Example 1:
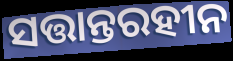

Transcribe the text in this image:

ସତ୍ତାନ୍ତରହୀନ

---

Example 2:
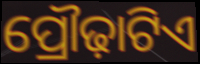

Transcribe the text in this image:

ପ୍ରୌଢ଼ାଟିଏ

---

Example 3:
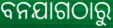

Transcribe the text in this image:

ବନଯାଗଠାରୁ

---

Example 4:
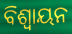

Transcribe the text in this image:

ବିଶ୍ଵାୟନ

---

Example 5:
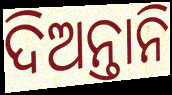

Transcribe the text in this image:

ଦିଅନ୍ତାନି